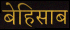
बेहिसाब